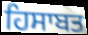
ਹਿਸਾਬਤ